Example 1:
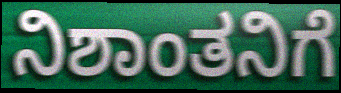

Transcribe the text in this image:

ನಿಶಾಂತನಿಗೆ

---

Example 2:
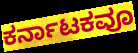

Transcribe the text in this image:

ಕರ್ನಾಟಕವೂ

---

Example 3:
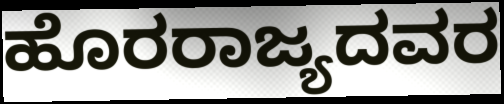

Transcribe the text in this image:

ಹೊರರಾಜ್ಯದವರ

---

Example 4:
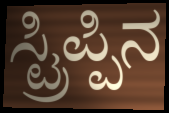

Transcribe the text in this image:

ಸ್ಟ್ರಿಪ್ಪಿನ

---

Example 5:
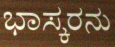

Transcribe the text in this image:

ಭಾಸ್ಕರನು